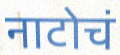
नाटोचं